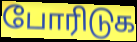
போரிடுக